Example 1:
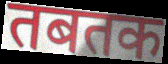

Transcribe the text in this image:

तबतक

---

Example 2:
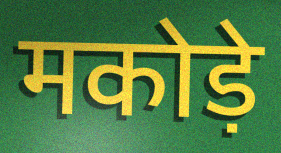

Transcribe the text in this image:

मकोड़े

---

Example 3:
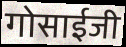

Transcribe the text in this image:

गोसाईजी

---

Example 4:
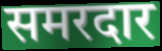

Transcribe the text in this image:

समरदार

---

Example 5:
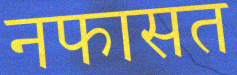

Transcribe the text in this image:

नफासत